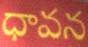
ధావన